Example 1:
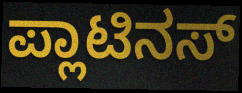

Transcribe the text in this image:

ಪ್ಲಾಟಿನಸ್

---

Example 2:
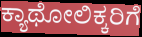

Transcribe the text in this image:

ಕ್ಯಾಥೋಲಿಕ್ಕರಿಗೆ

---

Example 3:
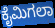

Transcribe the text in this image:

ಕೈಮಿಗಲಾ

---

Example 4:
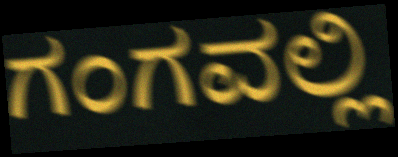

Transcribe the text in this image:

ಗಂಗವಲ್ಲಿ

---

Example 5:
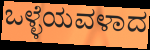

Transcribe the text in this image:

ಒಳ್ಳೆಯವಳಾದ